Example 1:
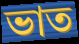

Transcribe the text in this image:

ভাত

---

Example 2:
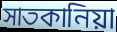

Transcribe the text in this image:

সাতকানিয়া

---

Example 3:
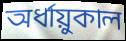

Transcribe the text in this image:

অর্ধায়ুকাল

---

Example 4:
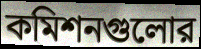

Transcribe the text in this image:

কমিশনগুলোর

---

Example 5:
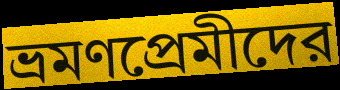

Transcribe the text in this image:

ভ্রমণপ্রেমীদের